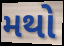
મથો